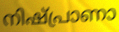
നിഷ്പ്രാണാ